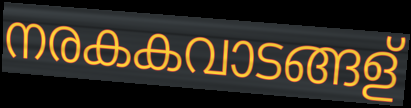
നരകകവാടങ്ങള്